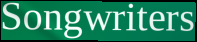
Songwriters